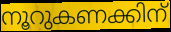
നൂറുകണക്കിന്